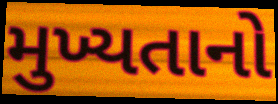
મુખ્યતાનો